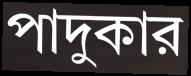
পাদুকার